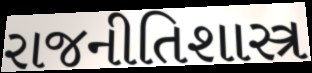
રાજનીતિશાસ્ત્ર